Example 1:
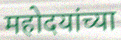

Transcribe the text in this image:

महोदयांच्या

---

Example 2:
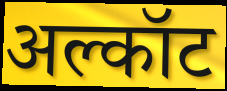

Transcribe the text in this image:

अल्कॉट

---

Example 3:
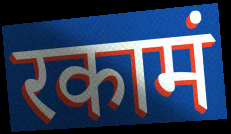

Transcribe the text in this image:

रकामं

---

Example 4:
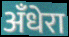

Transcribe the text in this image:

अँधेरा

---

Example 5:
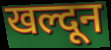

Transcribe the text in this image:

खल्दून